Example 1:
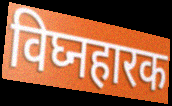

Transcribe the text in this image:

विघ्नहारक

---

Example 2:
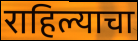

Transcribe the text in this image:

राहिल्याचा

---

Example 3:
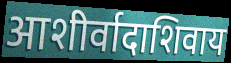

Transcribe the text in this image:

आशीर्वादाशिवाय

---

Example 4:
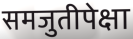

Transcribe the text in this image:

समजुतीपेक्षा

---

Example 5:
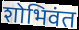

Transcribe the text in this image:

शोभिवंत